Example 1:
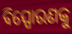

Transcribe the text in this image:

ବିସ୍ପୋରଣକୁ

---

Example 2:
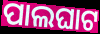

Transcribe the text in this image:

ପାଲଘାଟ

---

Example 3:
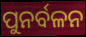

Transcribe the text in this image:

ପୁନର୍ବଳନ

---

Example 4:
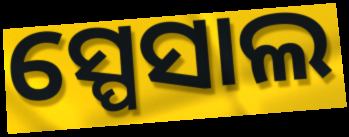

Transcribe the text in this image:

ସ୍ପେସାଲ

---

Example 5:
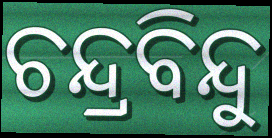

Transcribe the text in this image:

ଚନ୍ଦ୍ରବିନ୍ଦୁ